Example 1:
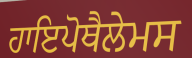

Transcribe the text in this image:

ਹਾਇਪੋਥੈਲੇਮਸ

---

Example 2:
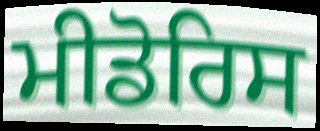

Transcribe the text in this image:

ਮੀਡੋਰਿਸ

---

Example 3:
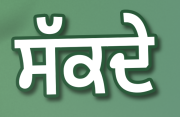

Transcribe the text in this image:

ਸੱਕਦੇ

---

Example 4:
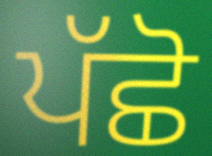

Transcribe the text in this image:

ਪੱਛੋ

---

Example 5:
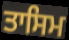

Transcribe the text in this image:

ਤਾਸਿਮ